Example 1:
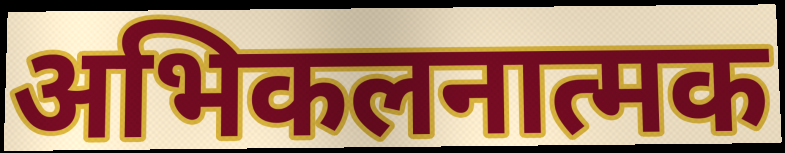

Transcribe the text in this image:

अभिकलनात्मक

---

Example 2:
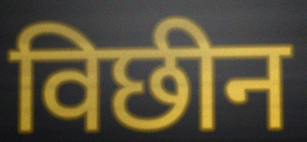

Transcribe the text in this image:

विछीन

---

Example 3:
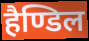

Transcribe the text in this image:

हैण्डिल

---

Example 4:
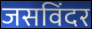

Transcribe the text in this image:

जसविंदर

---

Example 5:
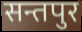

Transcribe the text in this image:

सन्तपुर